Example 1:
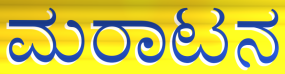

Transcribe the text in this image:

ಮರಾಟನ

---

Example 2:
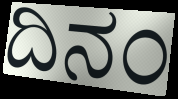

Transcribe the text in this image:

ದಿನಂ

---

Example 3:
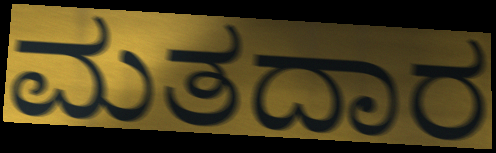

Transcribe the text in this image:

ಮತದಾರ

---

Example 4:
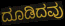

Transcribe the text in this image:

ದೂಡಿದವು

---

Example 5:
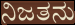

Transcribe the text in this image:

ನಿಜತನು